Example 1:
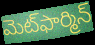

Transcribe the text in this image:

మెట్‌ఫార్మిన్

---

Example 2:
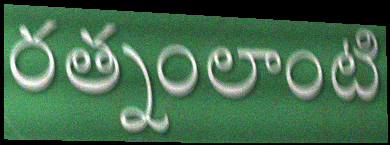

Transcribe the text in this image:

రత్నంలాంటి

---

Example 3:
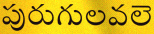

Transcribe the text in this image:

పురుగులవలె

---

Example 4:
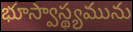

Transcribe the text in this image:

భూస్వాస్థ్యమును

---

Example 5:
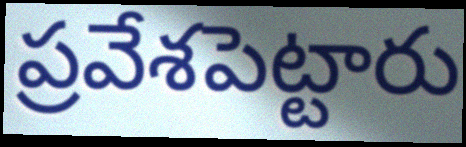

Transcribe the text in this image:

ప్రవేశపెట్టారు